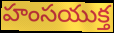
హంసయుక్త